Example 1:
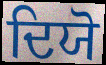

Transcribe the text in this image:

ਦਿਯੋ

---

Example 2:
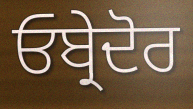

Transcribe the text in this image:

ਓਬ੍ਰੇਦੋਰ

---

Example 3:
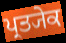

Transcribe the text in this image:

ਪ੍ਰਤ੍ਯੇਕ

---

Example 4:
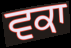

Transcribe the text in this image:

ਵਕਾ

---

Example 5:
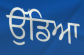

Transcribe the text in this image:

ਉੱਡਿਆ